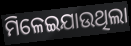
ମିଳେଇଯାଉଥିଲା